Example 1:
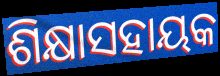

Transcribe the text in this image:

ଶିକ୍ଷାସହାୟକ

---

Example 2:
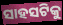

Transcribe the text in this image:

ସାହସଟିକୁ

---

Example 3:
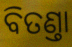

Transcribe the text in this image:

ବିତଣ୍ତା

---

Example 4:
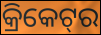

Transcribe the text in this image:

କ୍ରିକେଟ୍‌ର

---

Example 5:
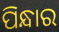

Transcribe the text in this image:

ପିନ୍ଧାର